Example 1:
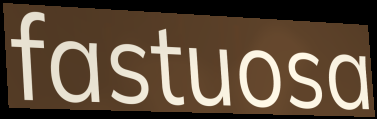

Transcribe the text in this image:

fastuosa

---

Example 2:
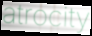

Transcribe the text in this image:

atrocity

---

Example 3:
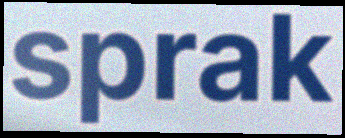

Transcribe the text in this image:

sprak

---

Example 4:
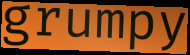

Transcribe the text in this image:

grumpy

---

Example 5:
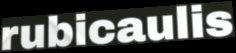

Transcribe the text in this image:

rubicaulis